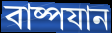
বাষ্পযান